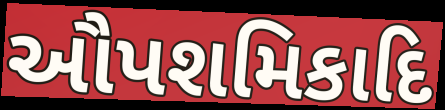
ઔપશમિકાદિ